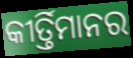
କୀର୍ତ୍ତିମାନର